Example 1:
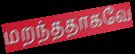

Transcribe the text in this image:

மறந்ததாகவே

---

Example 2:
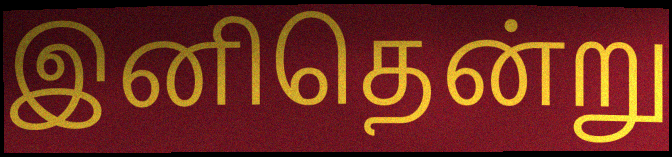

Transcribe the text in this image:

இனிதென்று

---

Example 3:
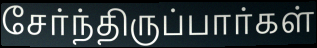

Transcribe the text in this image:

சேர்ந்திருப்பார்கள்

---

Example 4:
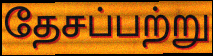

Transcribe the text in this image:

தேசப்பற்று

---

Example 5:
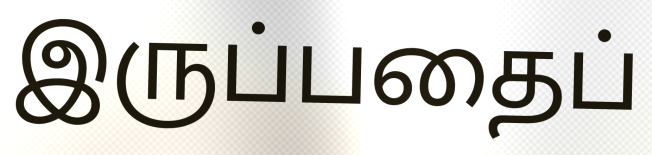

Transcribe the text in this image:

இருப்பதைப்